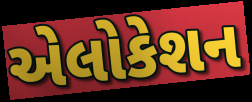
એલોકેશન